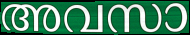
അവസാ